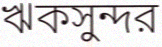
ঋকসুন্দর